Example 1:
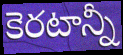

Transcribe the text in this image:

కెరటాన్నీ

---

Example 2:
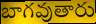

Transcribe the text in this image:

బాగవుతారు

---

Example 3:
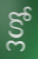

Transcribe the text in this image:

క్లో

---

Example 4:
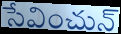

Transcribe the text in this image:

సేవించున్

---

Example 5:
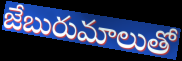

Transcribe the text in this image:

జేబురుమాలుతో